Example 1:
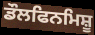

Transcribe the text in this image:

ਡੌਲਫਿਨਮਿਸ਼ੂ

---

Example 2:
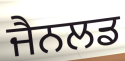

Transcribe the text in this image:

ਜੈਨਲਡ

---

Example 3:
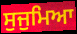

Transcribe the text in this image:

ਸੁਜੁਮਿਆ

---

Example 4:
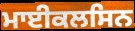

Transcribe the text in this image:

ਮਾਈਕਲਸਿਨ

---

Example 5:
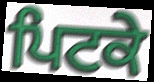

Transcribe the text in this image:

ਪਿਟਕੇ